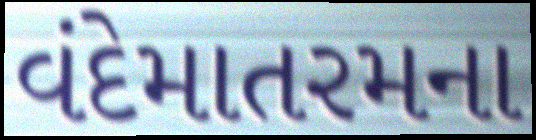
વંદેમાતરમના